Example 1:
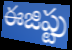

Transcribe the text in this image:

ఈజిప్టు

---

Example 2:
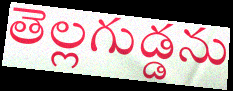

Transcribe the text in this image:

తెల్లగుడ్డను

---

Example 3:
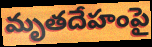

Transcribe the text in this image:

మృతదేహంపై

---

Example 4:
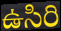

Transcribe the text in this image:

ఉసిరి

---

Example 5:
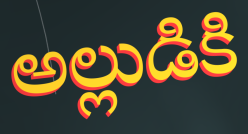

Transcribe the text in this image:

అల్లుడికి